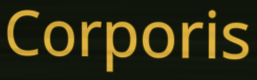
Corporis